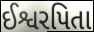
ઈશ્વરપિતા